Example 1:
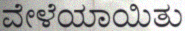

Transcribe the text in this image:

ವೇಳೆಯಾಯಿತು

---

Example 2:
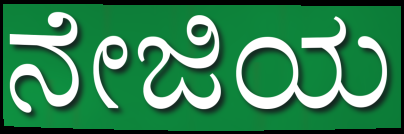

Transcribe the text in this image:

ನೇಜಿಯ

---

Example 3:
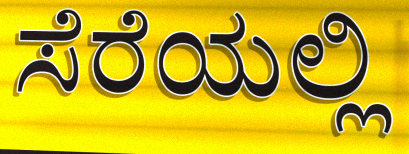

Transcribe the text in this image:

ಸೆರೆಯಲ್ಲಿ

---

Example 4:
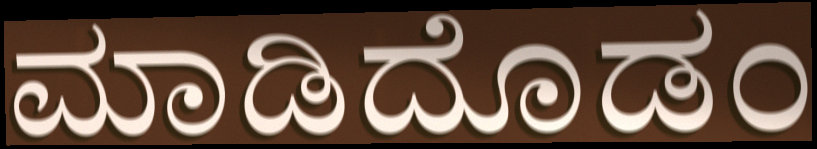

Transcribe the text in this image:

ಮಾಡಿದೊಡಂ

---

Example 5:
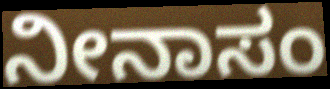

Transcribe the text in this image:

ನೀನಾಸಂ